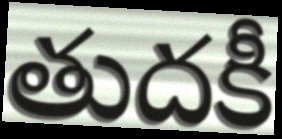
తుదకీ